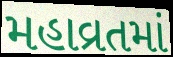
મહાવ્રતમાં